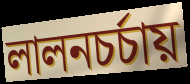
লালনচর্চায়